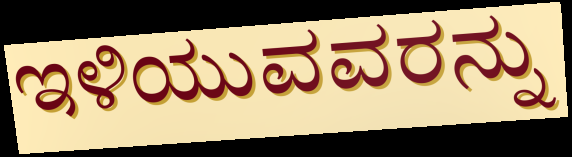
ಇಳಿಯುವವರನ್ನು